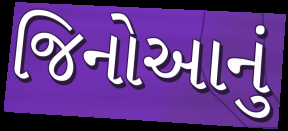
જિનોઆનું